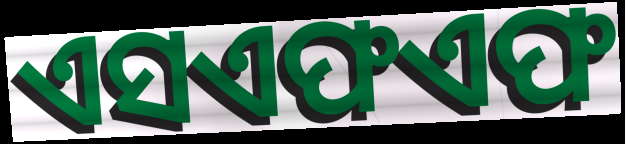
ଏସଏଫଏଫ